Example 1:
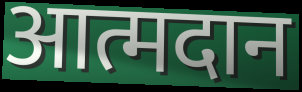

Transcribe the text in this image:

आत्मदान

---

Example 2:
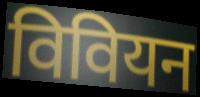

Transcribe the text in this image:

विवियन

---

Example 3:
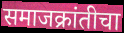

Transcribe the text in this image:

समाजक्रांतीचा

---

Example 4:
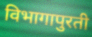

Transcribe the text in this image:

विभागापुरती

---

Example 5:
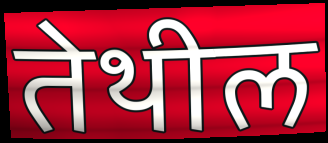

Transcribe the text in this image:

तेथील